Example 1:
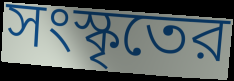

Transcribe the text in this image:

সংস্কৃতের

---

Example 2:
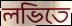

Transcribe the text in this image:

লভিতে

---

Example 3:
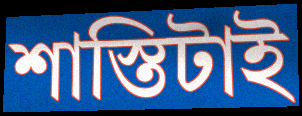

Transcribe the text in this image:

শাস্তিটাই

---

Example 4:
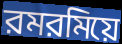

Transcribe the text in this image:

রমরমিয়ে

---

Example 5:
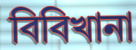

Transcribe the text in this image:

বিবিখানা